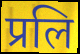
प्रलि